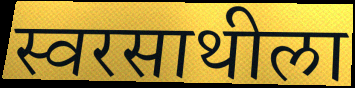
स्वरसाथीला